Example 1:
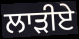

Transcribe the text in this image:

ਲਾੜੀਏ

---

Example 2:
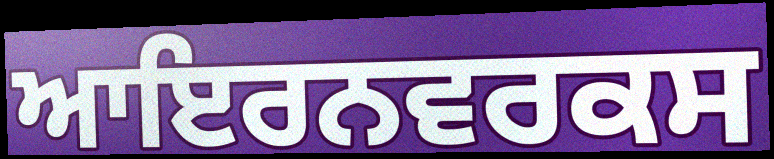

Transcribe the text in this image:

ਆਇਰਨਵਰਕਸ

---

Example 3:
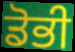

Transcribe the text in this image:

ਡੋਭੀ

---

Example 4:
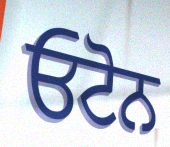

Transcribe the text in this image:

ਓਟੋਨ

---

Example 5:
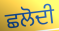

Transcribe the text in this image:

ਛਲੋਦੀ